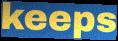
keeps